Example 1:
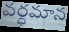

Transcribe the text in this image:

వర్ధమాన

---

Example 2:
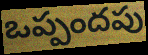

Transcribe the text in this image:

ఒప్పందపు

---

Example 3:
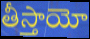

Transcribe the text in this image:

తీస్తాయో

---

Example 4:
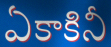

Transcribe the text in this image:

ఏకాకినీ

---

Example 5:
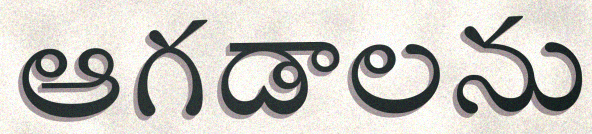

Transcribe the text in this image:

ఆగడాలను